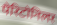
पेरिटोनिलर